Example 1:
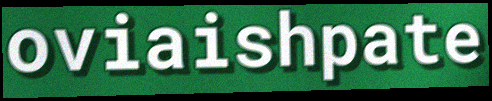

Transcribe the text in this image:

oviaishpate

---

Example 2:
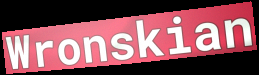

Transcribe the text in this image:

Wronskian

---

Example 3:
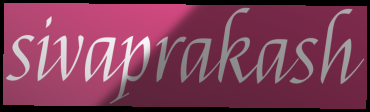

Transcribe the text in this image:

sivaprakash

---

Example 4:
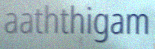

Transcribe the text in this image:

aaththigam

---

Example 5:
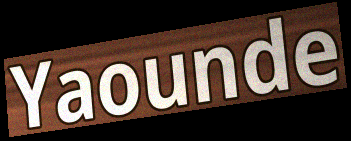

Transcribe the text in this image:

Yaounde